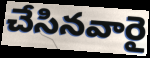
చేసినవారై